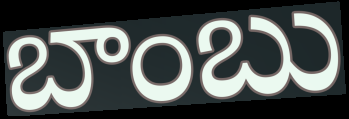
బాంబు